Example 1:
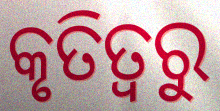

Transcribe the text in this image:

କୃତିତ୍ଵରୁ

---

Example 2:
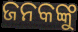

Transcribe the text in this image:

ଜନକଙ୍କୁ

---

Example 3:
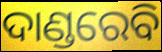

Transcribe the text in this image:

ଦାଣ୍ଡରେବି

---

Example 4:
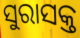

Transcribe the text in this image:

ସୁରାସକ୍ତ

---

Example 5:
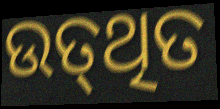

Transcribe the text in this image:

ଉତ୍‍ଥିତ